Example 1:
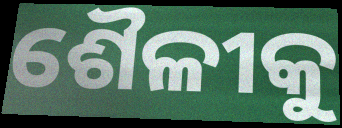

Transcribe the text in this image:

ଶୈଳୀକୁ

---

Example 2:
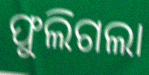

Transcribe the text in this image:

ଫୁଲିଗଲା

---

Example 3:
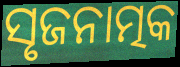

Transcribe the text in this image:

ସୃଜନାତ୍ମକ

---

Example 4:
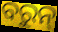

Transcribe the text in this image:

ବରୁନ୍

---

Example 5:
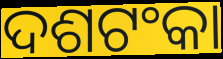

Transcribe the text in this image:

ଦଶଟଂକା